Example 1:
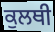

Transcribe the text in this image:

ਕੁਲਥੀ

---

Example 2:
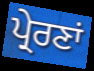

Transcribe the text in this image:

ਪ੍ਰੇਰਣਾਂ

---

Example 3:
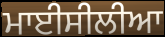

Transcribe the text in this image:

ਮਾਈਸੀਲੀਆ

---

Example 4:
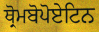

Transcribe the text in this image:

ਥ੍ਰੋਮਬੋਪੋਏਟਿਨ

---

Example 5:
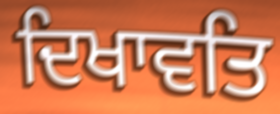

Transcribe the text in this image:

ਦਿਖਾਵਤਿ